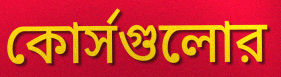
কোর্সগুলোর